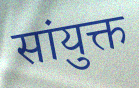
सांयुक्त